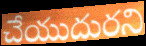
చేయుదురని